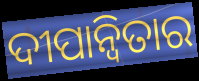
ଦୀପାନ୍ୱିତାର